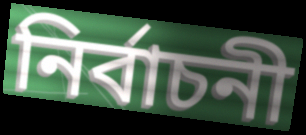
নির্বাচনী